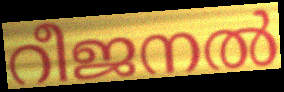
റീജനൽ